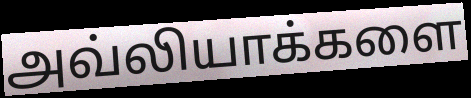
அவ்லியாக்களை